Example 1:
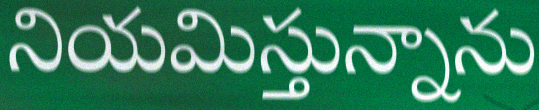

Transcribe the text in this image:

నియమిస్తున్నాను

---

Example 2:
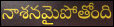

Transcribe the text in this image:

నాశనమైపోతోంది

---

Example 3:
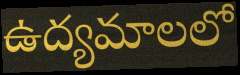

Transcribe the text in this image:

ఉద్యమాలలో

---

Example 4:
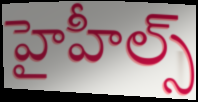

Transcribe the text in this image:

హైహీల్స్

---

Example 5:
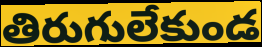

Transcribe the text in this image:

తిరుగులేకుండ